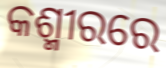
କଶ୍ମୀରରେ